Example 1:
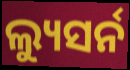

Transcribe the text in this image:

ଲ୍ୟୁସର୍ନ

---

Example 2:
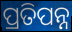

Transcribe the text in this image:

ପ୍ରତିପନ୍ନ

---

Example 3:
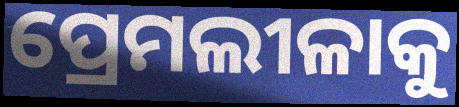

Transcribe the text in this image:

ପ୍ରେମଲୀଳାକୁ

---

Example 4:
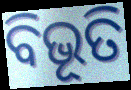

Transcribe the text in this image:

ବିଭୂତି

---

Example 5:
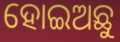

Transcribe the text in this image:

ହୋଇଅଛୁ